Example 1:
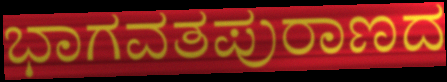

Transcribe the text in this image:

ಭಾಗವತಪುರಾಣದ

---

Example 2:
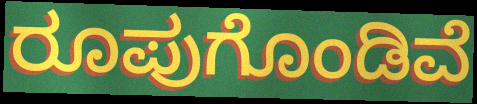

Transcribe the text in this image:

ರೂಪುಗೊಂಡಿವೆ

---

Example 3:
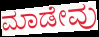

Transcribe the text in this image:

ಮಾಡೇವು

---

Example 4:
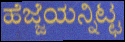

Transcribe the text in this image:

ಹೆಜ್ಜೆಯನ್ನಿಟ್ಟ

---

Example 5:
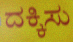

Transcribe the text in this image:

ದಕ್ಕಿಸು